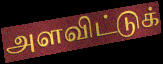
அளவிட்டுக்